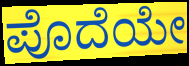
ಪೊದೆಯೇ